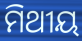
ମିଥୀୟ